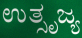
ಉತ್ಸೃಜ್ಯ